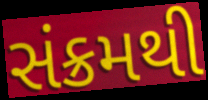
સંક્રમથી